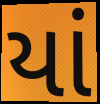
યાં